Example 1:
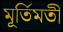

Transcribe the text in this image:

মূর্তিমতী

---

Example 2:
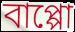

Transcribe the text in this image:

বাপ্পো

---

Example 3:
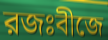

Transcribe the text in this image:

রজঃবীজে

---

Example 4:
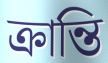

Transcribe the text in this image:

ক্রান্তি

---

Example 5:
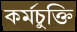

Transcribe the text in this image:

কর্মচুক্তি